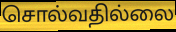
சொல்வதில்லை